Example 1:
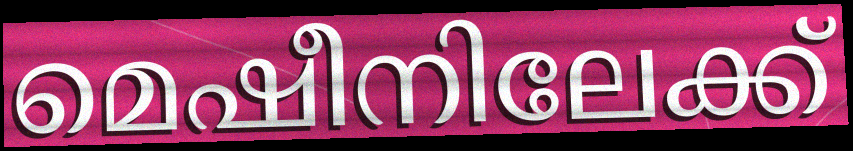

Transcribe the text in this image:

മെഷീനിലേക്ക്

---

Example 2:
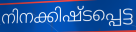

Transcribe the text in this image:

നിനക്കിഷ്ടപ്പെട്ട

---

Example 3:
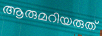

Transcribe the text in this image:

ആരുമറിയരുത്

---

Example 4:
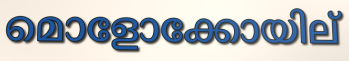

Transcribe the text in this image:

മൊളോക്കോയില്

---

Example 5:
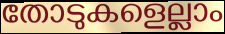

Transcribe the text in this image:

തോടുകളെല്ലാം